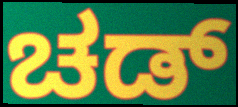
ಚಡ್